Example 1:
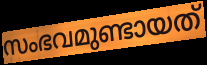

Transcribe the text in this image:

സംഭവമുണ്ടായത്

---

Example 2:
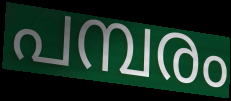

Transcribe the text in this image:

പമ്പരം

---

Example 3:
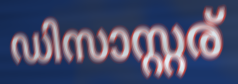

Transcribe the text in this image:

ഡിസാസ്റ്റര്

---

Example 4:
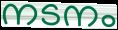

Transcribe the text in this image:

നടനം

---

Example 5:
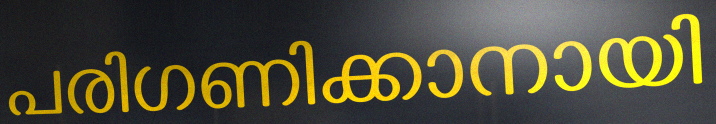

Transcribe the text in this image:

പരിഗണിക്കാനായി